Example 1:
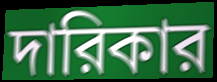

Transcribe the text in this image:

দারিকার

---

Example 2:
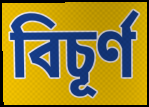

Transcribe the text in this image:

বিচূর্ণ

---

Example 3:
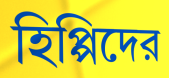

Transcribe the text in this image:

হিপ্পিদের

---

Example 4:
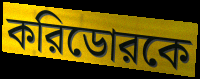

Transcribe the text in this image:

করিডোরকে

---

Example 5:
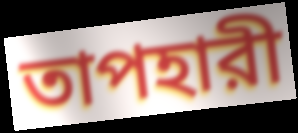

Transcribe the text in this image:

তাপহারী